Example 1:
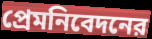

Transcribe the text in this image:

প্রেমনিবেদনের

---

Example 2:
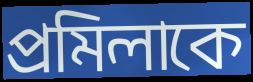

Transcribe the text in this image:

প্রমিলাকে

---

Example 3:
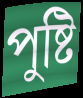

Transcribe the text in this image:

পুষ্টি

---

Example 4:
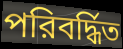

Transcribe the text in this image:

পরিবর্দ্ধিত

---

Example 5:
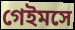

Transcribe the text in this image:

গেইমসে